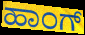
ಹಾಂಗ್